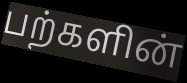
பற்களின்